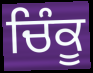
ਚਿੰਕੂ